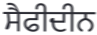
ਸੈਫੀਦੀਨ